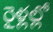
రైళ్లల్లో